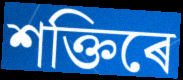
শক্তিৰে